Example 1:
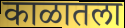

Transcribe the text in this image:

काळातला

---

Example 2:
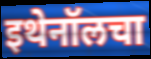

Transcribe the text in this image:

इथेनॉलचा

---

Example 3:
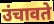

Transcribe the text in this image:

उंचावते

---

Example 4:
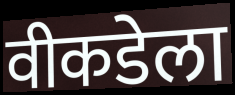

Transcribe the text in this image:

वीकडेला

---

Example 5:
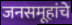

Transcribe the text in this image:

जनसमूहांचे